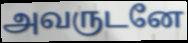
அவருடனே